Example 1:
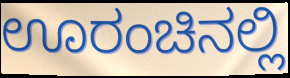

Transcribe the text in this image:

ಊರಂಚಿನಲ್ಲಿ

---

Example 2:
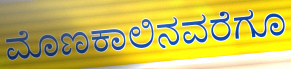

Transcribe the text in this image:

ಮೊಣಕಾಲಿನವರೆಗೂ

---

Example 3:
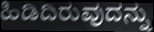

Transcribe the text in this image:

ಹಿಡಿದಿರುವುದನ್ನು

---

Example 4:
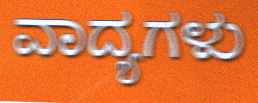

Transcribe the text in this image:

ವಾದ್ಯಗಳು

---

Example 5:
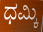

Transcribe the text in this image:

ಧಮ್ಕಿ